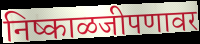
निष्काळजीपणावर